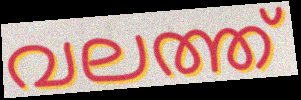
വലത്ത്